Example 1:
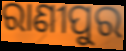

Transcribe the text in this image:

ରାଣୀପୁର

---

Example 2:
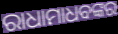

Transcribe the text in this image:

ରାଧାମାଧବଙ୍କର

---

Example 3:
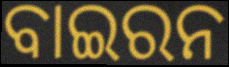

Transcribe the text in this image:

ବାଇରନ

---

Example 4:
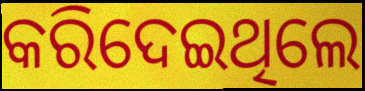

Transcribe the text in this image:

କରିଦେଇଥିଲେ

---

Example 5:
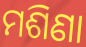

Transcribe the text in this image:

ମଶିଣା